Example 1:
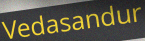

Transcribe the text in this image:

Vedasandur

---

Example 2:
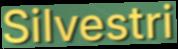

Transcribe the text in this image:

Silvestri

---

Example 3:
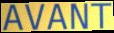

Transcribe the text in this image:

AVANT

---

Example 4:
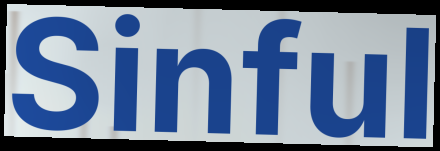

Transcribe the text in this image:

Sinful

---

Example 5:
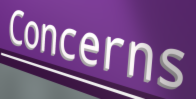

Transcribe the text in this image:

Concerns